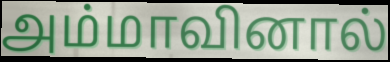
அம்மாவினால்